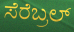
ಸೆರೆಬ್ರಲ್